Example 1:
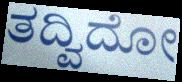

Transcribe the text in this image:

ತದ್ವಿದೋ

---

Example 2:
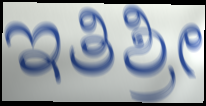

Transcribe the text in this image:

ಇತಿಶ್ರೀ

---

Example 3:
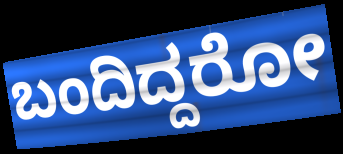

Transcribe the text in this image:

ಬಂದಿದ್ದರೋ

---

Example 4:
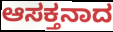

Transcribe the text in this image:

ಆಸಕ್ತನಾದ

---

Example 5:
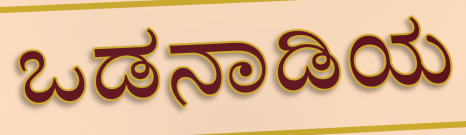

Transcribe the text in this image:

ಒಡನಾಡಿಯ